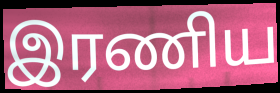
இரணிய